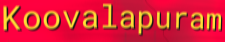
Koovalapuram